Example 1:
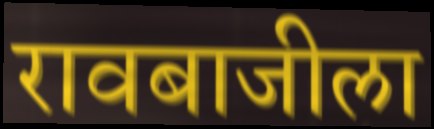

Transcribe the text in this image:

रावबाजीला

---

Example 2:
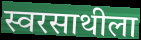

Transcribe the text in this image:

स्वरसाथीला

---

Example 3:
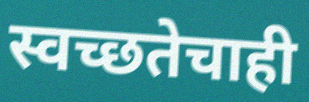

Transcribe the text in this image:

स्वच्छतेचाही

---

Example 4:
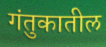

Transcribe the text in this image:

गंतुकातील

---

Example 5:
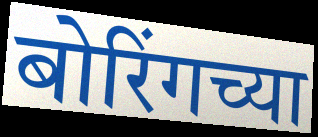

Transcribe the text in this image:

बोरिंगच्या